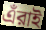
এঁরাই